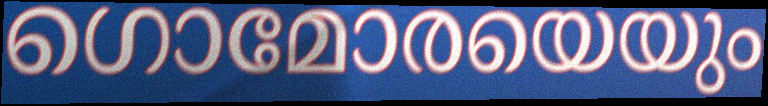
ഗൊമോരയെയും